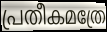
പ്രതീകമത്രേ